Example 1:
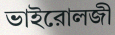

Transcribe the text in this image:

ভাইরোলজী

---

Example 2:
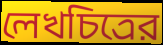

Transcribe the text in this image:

লেখচিত্রের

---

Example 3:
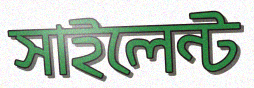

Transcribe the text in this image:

সাইলেন্ট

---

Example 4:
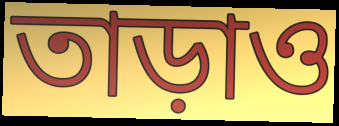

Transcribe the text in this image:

তাড়াও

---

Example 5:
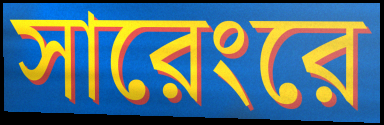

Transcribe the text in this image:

সারেংরে